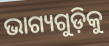
ଭାଗ୍ୟଗୁଡ଼ିକୁ